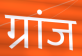
ग्रांज